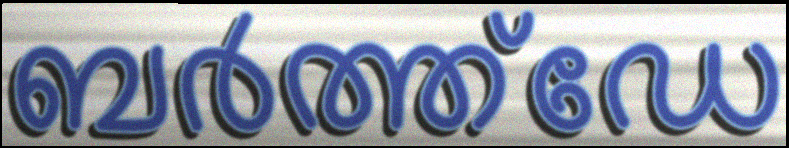
ബർത്ത്ഡേ